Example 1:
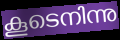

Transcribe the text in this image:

കൂടെനിന്നു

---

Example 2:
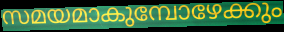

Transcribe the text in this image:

സമയമാകുമ്പോഴേക്കും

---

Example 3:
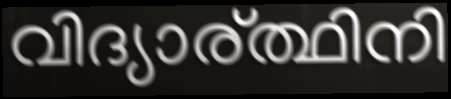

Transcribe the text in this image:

വിദ്യാര്ത്ഥിനി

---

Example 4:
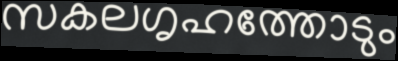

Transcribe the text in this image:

സകലഗൃഹത്തോടും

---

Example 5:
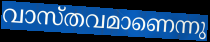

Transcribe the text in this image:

വാസ്തവമാണെന്നു